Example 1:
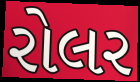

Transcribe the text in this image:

રોલર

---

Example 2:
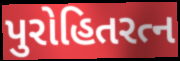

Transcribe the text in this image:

પુરોહિતરત્ન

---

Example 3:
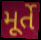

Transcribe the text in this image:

મૂર્તે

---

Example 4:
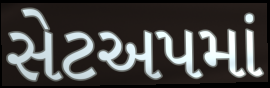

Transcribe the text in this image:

સેટઅપમાં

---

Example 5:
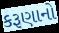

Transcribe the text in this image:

કરૂણાનો